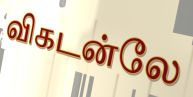
விகடன்லே